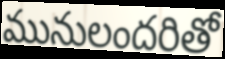
మునులందరితో